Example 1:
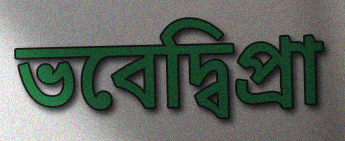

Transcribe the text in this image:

ভবেদ্বিপ্রা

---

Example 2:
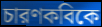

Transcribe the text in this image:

চারণকবিকে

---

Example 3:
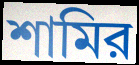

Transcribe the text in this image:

শামির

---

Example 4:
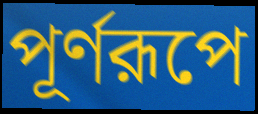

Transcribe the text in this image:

পূর্ণরূপে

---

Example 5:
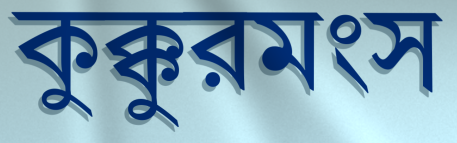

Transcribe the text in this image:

কুক্কুরমংস